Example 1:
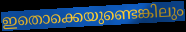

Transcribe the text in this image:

ഇതൊക്കെയുണ്ടെങ്കിലും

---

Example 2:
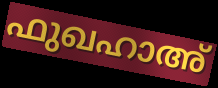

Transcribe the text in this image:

ഫുഖഹാഅ്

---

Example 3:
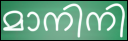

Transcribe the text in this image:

മാനിനി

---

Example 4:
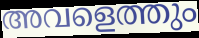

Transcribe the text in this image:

അവളെത്തും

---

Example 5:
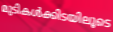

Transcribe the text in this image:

മുടികൾക്കിടയിലൂടെ